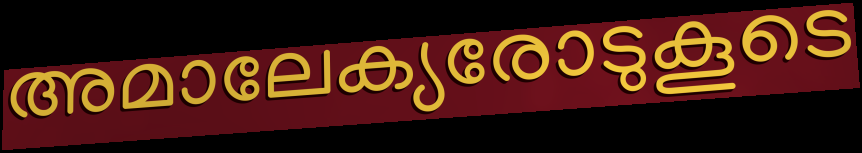
അമാലേക്യരോടുകൂടെ